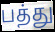
பத்து